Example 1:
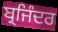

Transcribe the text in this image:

ਬ੍ਰਜਿੰਦਰ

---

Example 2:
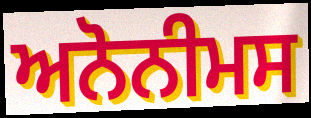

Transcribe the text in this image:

ਅਨੋਨੀਮਸ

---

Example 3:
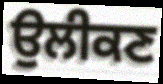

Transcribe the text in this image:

ਉਲੀਕਣ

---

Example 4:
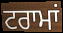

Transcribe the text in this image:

ਟਰਾਮਾਂ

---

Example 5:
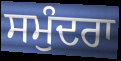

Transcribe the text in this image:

ਸਮੁੰਦਰਾ